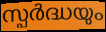
സ്പർദ്ധയും